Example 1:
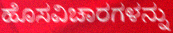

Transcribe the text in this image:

ಹೊಸವಿಚಾರಗಳನ್ನು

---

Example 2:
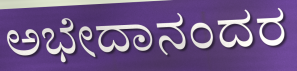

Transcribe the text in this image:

ಅಭೇದಾನಂದರ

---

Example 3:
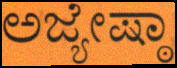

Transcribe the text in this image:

ಅಜ್ಯೇಷ್ಠಾ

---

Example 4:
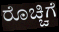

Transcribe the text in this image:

ರೊಚ್ಚಿಗೆ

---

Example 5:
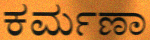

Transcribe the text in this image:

ಕರ್ಮಣಾ